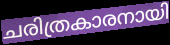
ചരിത്രകാരനായി